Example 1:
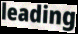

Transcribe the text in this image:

leading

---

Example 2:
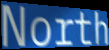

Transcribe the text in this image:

North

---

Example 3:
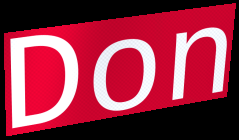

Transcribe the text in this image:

Don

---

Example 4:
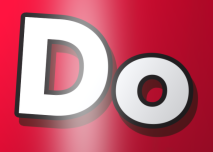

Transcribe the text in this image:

Do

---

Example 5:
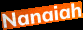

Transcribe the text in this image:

Nanaiah